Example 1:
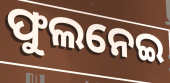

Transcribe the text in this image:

ଫୁଲନେଇ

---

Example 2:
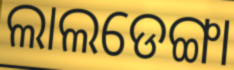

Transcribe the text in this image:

ଲାଲଡେଙ୍ଗା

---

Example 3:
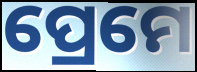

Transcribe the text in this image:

ପ୍ରେମେ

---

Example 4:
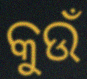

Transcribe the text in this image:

କୁଉଁ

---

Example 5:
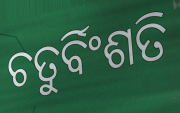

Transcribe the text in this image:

ଚତୁର୍ବିଂଶତି